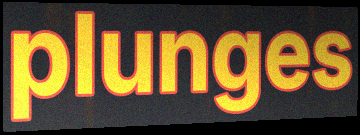
plunges